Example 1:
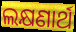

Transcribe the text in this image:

ଲକ୍ଷଣାର୍ଥ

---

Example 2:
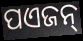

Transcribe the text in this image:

ପଏଜନ୍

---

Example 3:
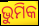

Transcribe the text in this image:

ଭୁମିକ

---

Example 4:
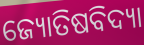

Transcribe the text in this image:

ଜ୍ୟୋତିଷବିଦ୍ୟା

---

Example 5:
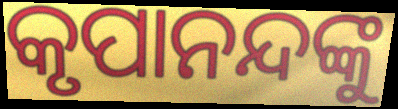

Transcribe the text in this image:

କୃପାନନ୍ଦଙ୍କୁ